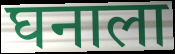
घनाला